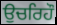
ਉਚਰਿਹੌ